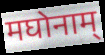
मघोनाम्